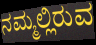
ನಮ್ಮಲ್ಲಿರುವ